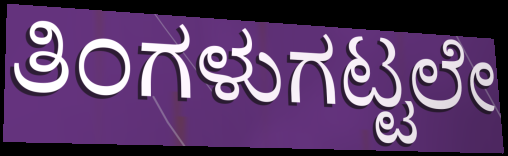
ತಿಂಗಳುಗಟ್ಟಲೇ